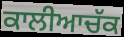
ਕਾਲੀਆਚੱਕ